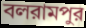
বলরামপুর